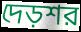
দেড়শর